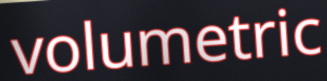
volumetric